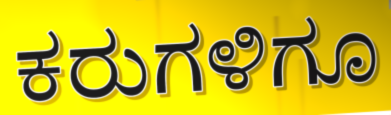
ಕರುಗಳಿಗೂ